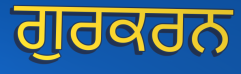
ਗੁਰਕਰਨ